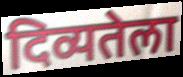
दिव्यतेला